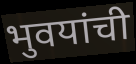
भुवयांची